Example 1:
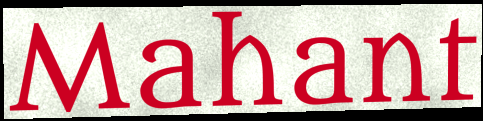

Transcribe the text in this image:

Mahant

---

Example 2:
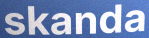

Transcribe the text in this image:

skanda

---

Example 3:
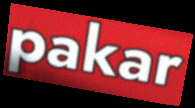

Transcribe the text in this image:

pakar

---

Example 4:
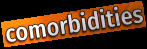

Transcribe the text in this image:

comorbidities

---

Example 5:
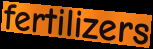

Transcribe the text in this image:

fertilizers